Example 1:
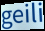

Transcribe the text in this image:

geili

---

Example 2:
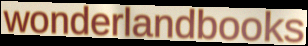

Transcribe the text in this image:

wonderlandbooks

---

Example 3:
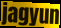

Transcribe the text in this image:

jagyun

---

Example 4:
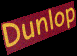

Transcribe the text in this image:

Dunlop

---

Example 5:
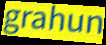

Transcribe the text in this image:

grahun